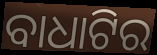
ବାଧାଟିର